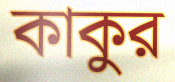
কাকুর